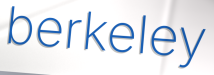
berkeley